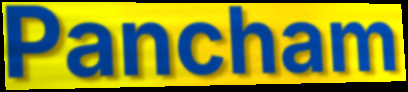
Pancham